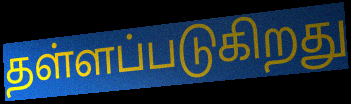
தள்ளப்படுகிறது